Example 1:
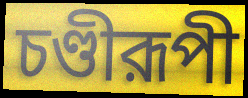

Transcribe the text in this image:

চণ্ডীরূপী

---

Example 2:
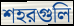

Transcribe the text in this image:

শহরগুলি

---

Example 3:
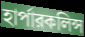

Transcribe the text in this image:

হার্পারকলিন্স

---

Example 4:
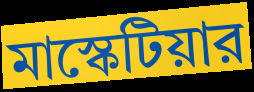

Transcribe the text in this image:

মাস্কেটিয়ার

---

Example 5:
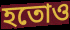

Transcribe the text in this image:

হতোও